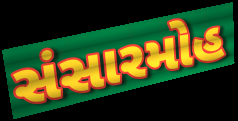
સંસારમોહ